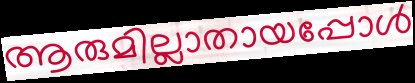
ആരുമില്ലാതായപ്പോൾ